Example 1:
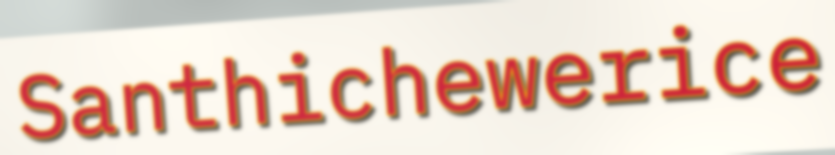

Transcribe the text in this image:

Santhichewerice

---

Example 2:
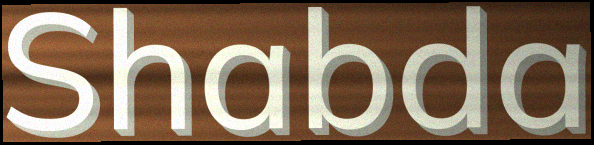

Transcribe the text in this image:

Shabda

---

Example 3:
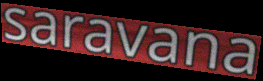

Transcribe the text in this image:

saravana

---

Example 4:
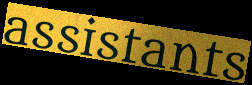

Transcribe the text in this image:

assistants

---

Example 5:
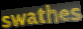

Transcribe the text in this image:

swathes